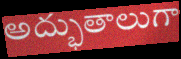
అద్భుతాలుగా